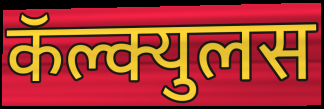
कॅल्क्युलस